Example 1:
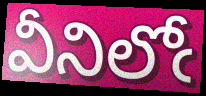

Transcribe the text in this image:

వీనిలోఁ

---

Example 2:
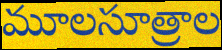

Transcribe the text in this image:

మూలసూత్రాల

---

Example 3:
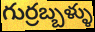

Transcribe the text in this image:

గుర్రబ్బళ్ళు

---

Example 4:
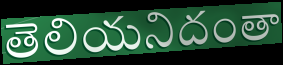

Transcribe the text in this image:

తెలియనిదంతా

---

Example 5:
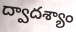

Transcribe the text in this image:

ద్వాదశ్యాం